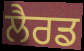
ਲੈਰਡ